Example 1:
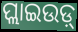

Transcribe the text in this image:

ପ୍ଲାଇଉଡ଼୍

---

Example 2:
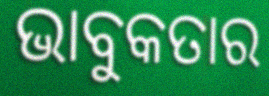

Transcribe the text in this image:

ଭାବୁକତାର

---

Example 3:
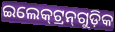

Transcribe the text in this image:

ଇଲେକ୍‍ଟ୍ରନ୍‍ଗୁଡ଼ିକ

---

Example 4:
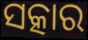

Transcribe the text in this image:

ସତ୍କାର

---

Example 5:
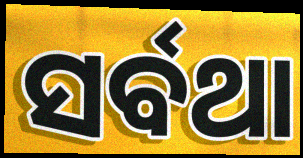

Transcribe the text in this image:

ସର୍ବଥା